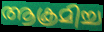
ആക്രമിച്ച